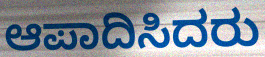
ಆಪಾದಿಸಿದರು